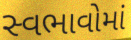
સ્વભાવોમાં